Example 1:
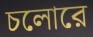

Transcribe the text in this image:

চলোরে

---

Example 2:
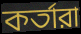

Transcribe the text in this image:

কর্তারা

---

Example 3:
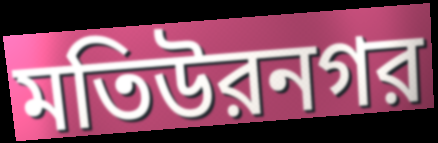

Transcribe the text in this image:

মতিউরনগর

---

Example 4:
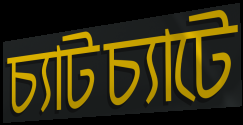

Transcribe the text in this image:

চ্যাটচ্যাটে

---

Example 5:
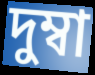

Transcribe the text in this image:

দুম্বা